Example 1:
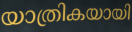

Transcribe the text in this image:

യാത്രികയായി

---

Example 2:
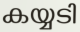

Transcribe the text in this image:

കയ്യടി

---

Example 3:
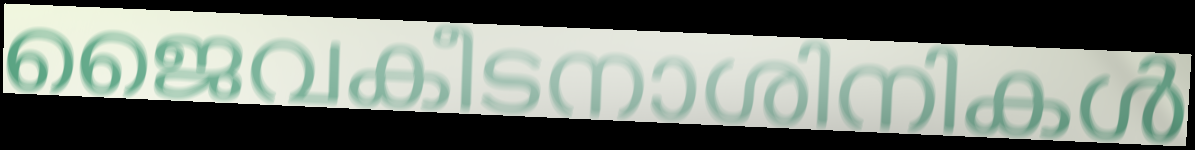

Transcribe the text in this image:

ജൈവകീടനാശിനികൾ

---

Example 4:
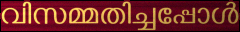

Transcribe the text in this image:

വിസമ്മതിച്ചപ്പോൾ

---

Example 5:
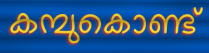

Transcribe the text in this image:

കമ്പുകൊണ്ട്